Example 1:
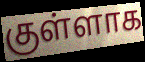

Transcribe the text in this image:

குள்ளாக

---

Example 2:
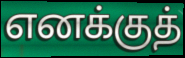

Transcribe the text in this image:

எனக்குத்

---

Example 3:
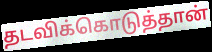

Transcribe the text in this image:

தடவிக்கொடுத்தான்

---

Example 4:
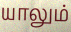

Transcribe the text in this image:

யாலும்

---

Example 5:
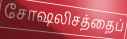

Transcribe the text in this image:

சோஷலிசத்தைப்